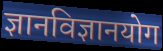
ज्ञानविज्ञानयोग